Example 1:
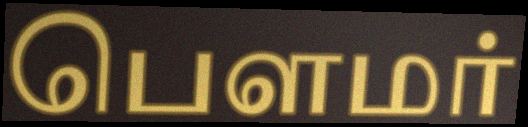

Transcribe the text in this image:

பௌமர்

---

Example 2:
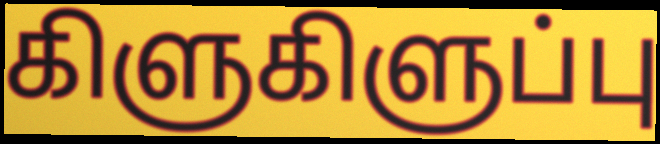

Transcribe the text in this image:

கிளுகிளுப்பு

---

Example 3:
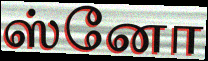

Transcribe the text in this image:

ஸ்னோ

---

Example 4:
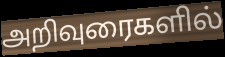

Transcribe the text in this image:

அறிவுரைகளில்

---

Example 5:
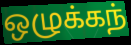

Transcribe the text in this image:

ஒழுக்கந்